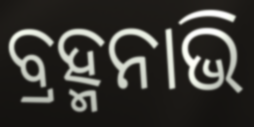
ବ୍ରହ୍ମନାଭି